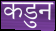
कडुन